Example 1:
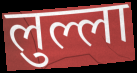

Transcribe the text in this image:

लुल्ला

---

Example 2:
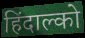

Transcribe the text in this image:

हिंदाल्को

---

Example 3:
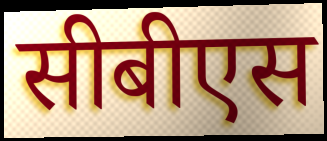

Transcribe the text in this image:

सीबीएस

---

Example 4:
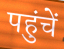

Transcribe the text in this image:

पहुंचें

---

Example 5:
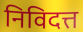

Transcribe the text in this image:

निविदत्त